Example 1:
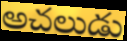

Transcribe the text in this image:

అచలుడు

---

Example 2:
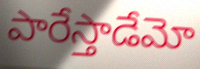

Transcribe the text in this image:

పారేస్తాడేమో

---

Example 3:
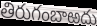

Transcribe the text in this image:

తిరుగంబాఱదు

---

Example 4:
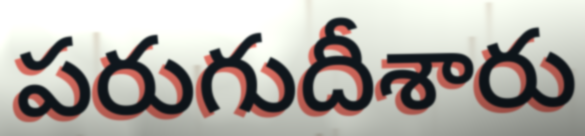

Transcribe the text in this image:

పరుగుదీశారు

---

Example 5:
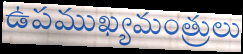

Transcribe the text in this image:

ఉపముఖ్యమంత్రులు